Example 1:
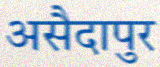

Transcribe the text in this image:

असैदापुर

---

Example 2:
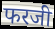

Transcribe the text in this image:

फरजी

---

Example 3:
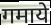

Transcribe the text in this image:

गमाये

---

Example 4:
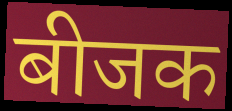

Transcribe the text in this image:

बीजक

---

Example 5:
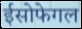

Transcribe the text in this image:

ईसोफेगल